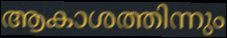
ആകാശത്തിന്നും